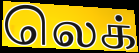
லெக்